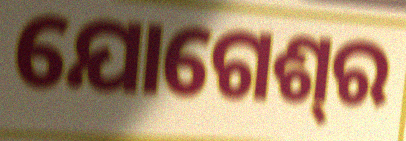
ଯୋଗେଶ୍‍ର